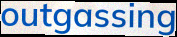
outgassing